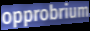
opprobrium